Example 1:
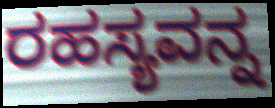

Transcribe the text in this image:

ರಹಸ್ಯವನ್ನ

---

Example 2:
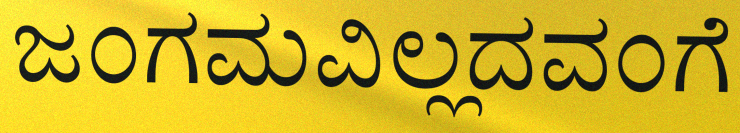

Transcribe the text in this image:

ಜಂಗಮವಿಲ್ಲದವಂಗೆ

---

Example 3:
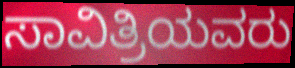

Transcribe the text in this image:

ಸಾವಿತ್ರಿಯವರು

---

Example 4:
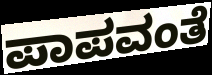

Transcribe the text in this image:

ಪಾಪವಂತೆ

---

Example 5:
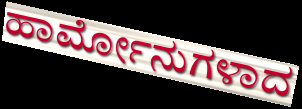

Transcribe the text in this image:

ಹಾರ್ಮೋನುಗಳಾದ